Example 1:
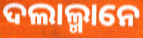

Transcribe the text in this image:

ଦଲାଲ୍ମାନେ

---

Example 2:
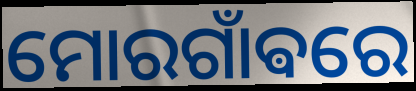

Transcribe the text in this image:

ମୋରଗାଁଵରେ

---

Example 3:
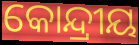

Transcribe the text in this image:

କୋନ୍ଦ୍ରୀୟ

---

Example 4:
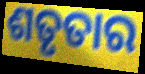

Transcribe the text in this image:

ଶତୃତାର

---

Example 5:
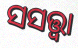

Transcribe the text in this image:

ସସତ୍ତ୍ୱା